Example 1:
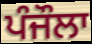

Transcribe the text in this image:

ਪੰਜੌਲਾ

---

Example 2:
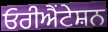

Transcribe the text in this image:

ਓਰੀਐਂਟੇਸ਼ਨ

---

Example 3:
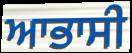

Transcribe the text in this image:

ਆਭਾਸੀ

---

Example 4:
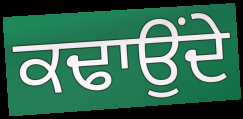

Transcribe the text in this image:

ਕਢਾਉਂਦੇ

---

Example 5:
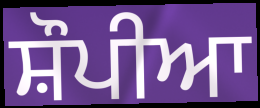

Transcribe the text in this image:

ਸ਼ੌਪੀਆ